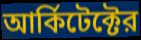
আর্কিটেক্টের